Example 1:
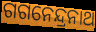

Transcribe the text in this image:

ଗଗନେନ୍ଦ୍ରନାଥ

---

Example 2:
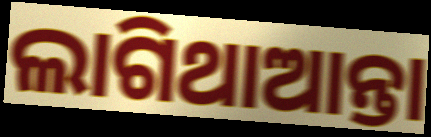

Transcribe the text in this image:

ଲାଗିଥାଆନ୍ତା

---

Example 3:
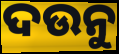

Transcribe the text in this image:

ଦଉନୁ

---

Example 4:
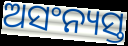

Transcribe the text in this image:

ଅସଂନ୍ୟସ୍ତ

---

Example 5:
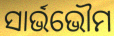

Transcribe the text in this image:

ସାର୍ଭଭୌମ